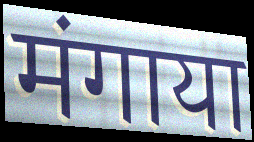
मंगाया